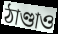
ঠাণ্ডাও